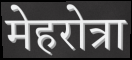
मेहरोत्रा